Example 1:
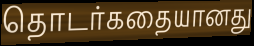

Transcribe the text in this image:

தொடர்கதையானது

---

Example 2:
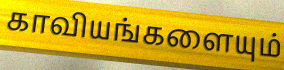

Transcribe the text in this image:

காவியங்களையும்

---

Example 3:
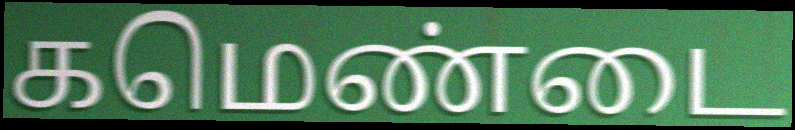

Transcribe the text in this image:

கமெண்டை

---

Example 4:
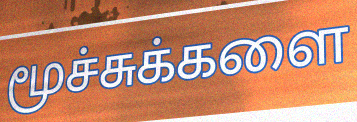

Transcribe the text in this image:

மூச்சுக்களை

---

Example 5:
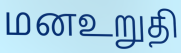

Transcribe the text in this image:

மனஉறுதி